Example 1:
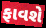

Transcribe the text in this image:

ફાવશે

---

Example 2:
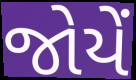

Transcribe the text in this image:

જોયેં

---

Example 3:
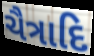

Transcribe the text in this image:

ચૈત્રાદિ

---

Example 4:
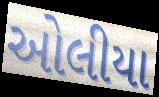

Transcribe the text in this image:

ઓલીયા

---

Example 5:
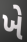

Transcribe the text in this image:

ખે